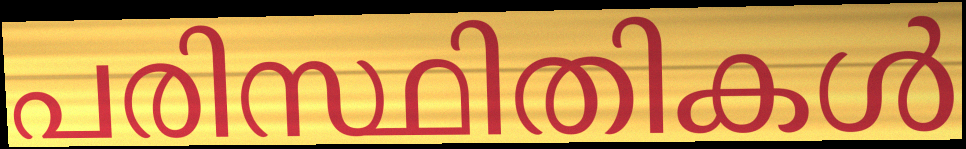
പരിസ്ഥിതികൾ